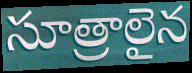
సూత్రాలైన